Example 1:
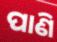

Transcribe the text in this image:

ପାଣି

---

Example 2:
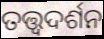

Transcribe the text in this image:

ତତ୍ତ୍ଵଦର୍ଶନ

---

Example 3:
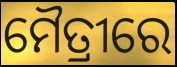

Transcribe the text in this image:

ମୈତ୍ରୀରେ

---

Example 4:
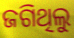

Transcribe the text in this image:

ଜଗିଥିଲୁ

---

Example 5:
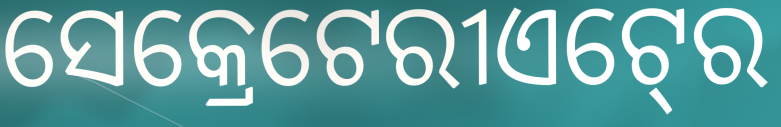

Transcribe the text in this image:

ସେକ୍ରେଟେରୀଏଟ୍‍ରେ